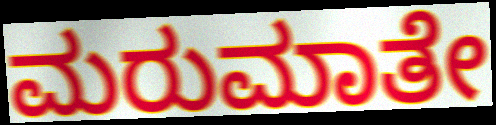
ಮರುಮಾತೇ